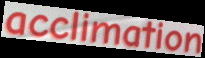
acclimation